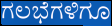
ಗಲಭೆಗಳಿಗೂ